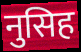
नुसिह